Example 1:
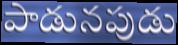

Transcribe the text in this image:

పాడునపుడు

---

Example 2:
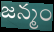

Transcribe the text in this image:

జన్మం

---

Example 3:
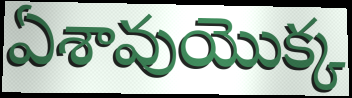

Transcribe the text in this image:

ఏశావుయొక్క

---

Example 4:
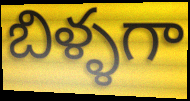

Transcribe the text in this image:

బిళ్ళగా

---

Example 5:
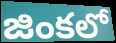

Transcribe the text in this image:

జింకలో